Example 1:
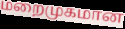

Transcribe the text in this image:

மறைமுகமான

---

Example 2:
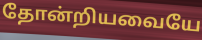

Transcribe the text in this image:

தோன்றியவையே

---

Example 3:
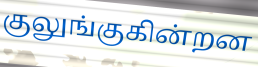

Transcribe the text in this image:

குலுங்குகின்றன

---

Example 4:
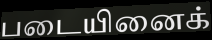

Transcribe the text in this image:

படையினைக்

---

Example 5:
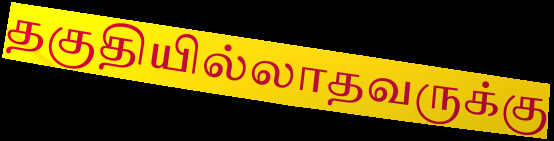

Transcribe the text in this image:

தகுதியில்லாதவருக்கு